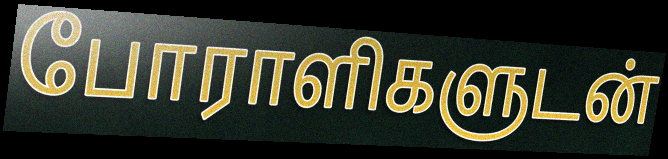
போராளிகளுடன்